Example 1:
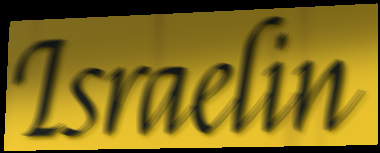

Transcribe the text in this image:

Israelin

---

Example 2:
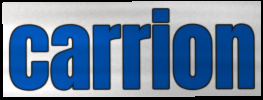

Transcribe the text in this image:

carrion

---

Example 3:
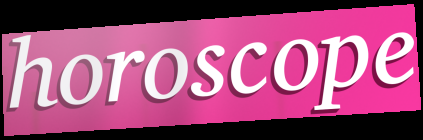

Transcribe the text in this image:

horoscope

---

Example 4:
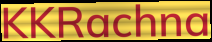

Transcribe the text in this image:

KKRachna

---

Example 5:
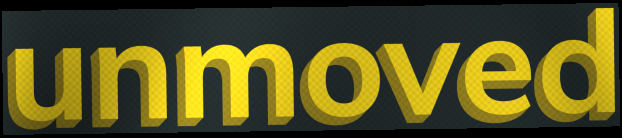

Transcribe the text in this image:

unmoved